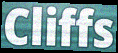
Cliffs